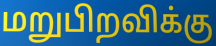
மறுபிறவிக்கு